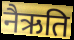
नैऋति